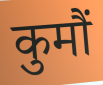
कुमौं